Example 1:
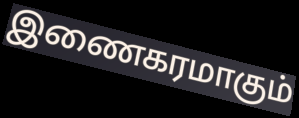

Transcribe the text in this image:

இணைகரமாகும்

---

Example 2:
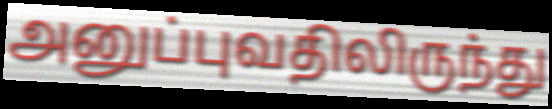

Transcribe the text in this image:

அனுப்புவதிலிருந்து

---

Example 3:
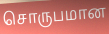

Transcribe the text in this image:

சொருபமான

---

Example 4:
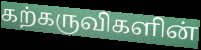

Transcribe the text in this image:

கற்கருவிகளின்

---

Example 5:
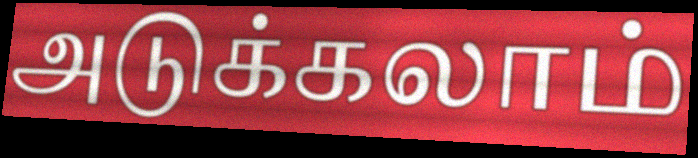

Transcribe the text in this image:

அடுக்கலாம்